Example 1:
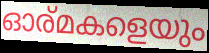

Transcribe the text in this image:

ഓര്മകളെയും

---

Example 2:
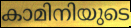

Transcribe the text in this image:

കാമിനിയുടെ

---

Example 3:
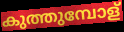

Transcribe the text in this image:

കുത്തുമ്പോള്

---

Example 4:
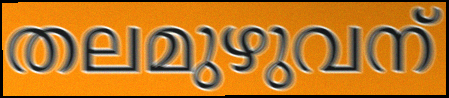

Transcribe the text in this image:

തലമുഴുവന്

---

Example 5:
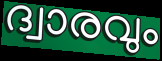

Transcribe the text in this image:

ദ്വാരവും